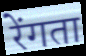
रेंगता